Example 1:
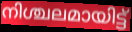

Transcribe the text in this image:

നിശ്ചലമായിട്ട്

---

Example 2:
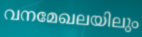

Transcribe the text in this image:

വനമേഖലയിലും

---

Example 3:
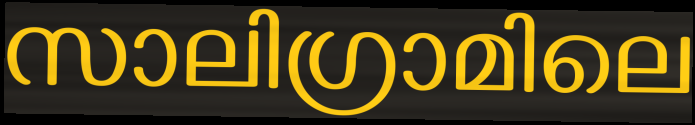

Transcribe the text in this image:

സാലിഗ്രാമിലെ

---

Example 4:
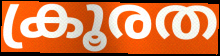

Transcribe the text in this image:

ക്രൂരത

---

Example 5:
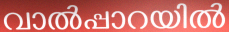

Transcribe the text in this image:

വാൽപ്പാറയിൽ